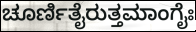
ಚೂರ್ಣಿತೈರುತ್ತಮಾಂಗೈಃ